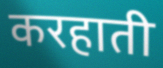
करहाती